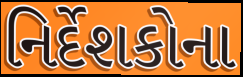
નિર્દેશકોના